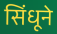
सिंधूने